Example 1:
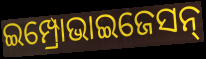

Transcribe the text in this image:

ଇମ୍ପ୍ରୋଭାଇଜେସନ୍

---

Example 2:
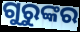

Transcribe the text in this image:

ଗୁରୁଙ୍କର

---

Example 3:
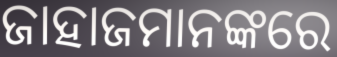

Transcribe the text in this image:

ଜାହାଜମାନଙ୍କରେ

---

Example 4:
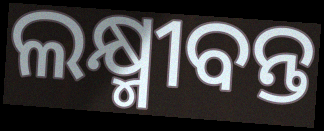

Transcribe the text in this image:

ଲକ୍ଷ୍ମୀବନ୍ତ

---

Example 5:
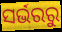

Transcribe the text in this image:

ସର୍ଭରରୁ